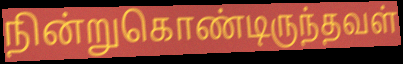
நின்றுகொண்டிருந்தவள்